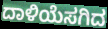
ದಾಳಿಯೆಸಗಿದ